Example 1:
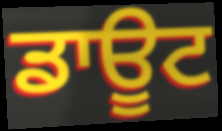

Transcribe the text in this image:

ਡਾਊਟ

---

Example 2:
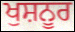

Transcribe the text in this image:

ਖੁਸ਼ਨੂਰ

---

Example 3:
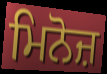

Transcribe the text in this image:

ਮਿਨੋਜ਼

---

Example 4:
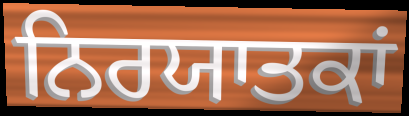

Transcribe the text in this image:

ਨਿਰਯਾਤਕਾਂ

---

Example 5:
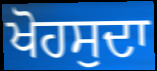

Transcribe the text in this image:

ਖੋਹਸੁਦਾ